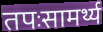
तपःसामर्थ्य